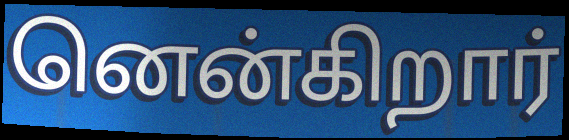
னென்கிறார்